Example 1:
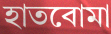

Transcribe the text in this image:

হাতবোমা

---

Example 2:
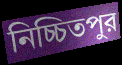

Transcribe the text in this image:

নিচ্চিতপুর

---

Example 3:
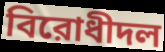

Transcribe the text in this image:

বিরোধীদল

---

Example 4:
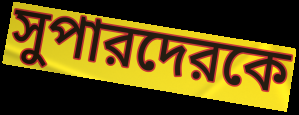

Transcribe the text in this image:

সুপারদেরকে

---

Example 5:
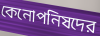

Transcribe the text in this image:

কেনোপনিষদের